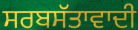
ਸਰਬਸੱਤਾਵਾਦੀ